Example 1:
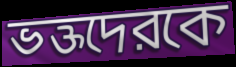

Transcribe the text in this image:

ভক্তদেরকে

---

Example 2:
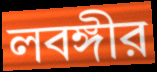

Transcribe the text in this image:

লবঙ্গীর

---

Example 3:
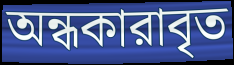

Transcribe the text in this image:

অন্ধকারাবৃত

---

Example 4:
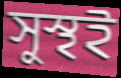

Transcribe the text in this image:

সুস্থই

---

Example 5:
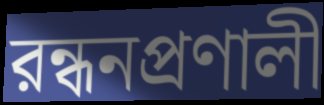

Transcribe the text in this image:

রন্ধনপ্রণালী